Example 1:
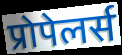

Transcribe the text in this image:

प्रोपेलर्स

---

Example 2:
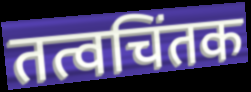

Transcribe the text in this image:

तत्वचिंतक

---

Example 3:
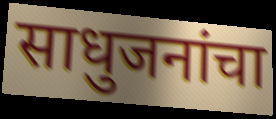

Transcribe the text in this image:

साधुजनांचा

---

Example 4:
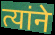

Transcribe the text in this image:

त्यांने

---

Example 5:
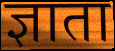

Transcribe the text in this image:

ज्ञाता